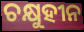
ଚକ୍ଷୁହୀନ